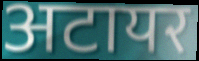
अटायर